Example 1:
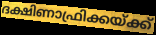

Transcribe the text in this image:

ദക്ഷിണാഫ്രിക്കയ്ക്ക്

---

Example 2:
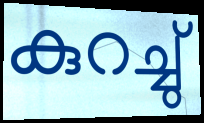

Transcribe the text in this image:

കുറച്ചു്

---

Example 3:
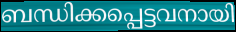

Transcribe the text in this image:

ബന്ധിക്കപ്പെട്ടവനായി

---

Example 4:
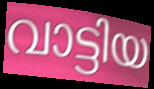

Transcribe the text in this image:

വാട്ടിയ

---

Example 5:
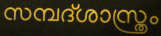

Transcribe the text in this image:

സമ്പദ്ശാസ്ത്രം